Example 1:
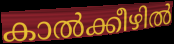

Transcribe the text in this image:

കാൽക്കീഴിൽ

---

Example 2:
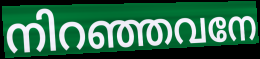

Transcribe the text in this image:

നിറഞ്ഞവനേ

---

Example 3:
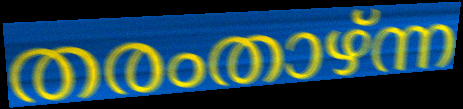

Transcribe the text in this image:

തരംതാഴ്ന്ന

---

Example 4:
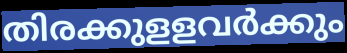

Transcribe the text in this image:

തിരക്കുളളവർക്കും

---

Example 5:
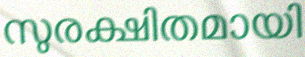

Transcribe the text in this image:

സുരക്ഷിതമായി